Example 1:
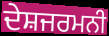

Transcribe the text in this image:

ਦੇਸ਼ਜਰਮਨੀ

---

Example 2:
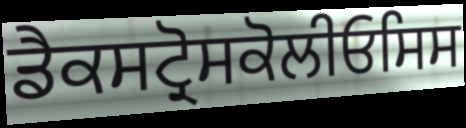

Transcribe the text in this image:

ਡੈਕਸਟ੍ਰੋਸਕੋਲੀਓਸਿਸ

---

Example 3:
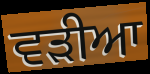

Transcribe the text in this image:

ਵੜੀਆ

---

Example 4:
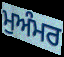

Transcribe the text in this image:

ਮੁਅੰਮਰ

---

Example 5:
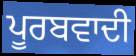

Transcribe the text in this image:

ਪੂਰਬਵਾਦੀ